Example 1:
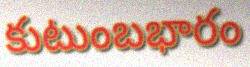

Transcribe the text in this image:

కుటుంబభారం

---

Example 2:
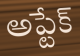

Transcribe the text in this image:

అప్టేక్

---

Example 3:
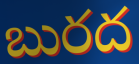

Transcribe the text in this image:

బురద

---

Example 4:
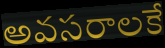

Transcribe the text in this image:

అవసరాలకే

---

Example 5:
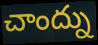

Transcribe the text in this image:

చాంద్ను